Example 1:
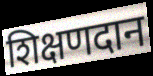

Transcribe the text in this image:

शिक्षणदान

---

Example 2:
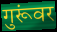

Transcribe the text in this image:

गुरूंवर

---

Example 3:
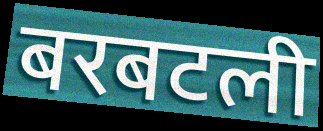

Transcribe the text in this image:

बरबटली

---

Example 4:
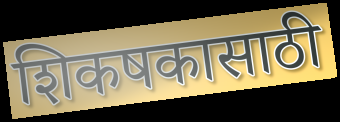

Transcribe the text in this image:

शिकषकासाठी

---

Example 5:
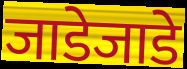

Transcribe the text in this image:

जाडेजाडे